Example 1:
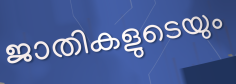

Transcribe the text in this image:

ജാതികളുടെയും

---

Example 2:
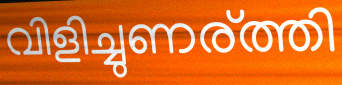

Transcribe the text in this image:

വിളിച്ചുണര്ത്തി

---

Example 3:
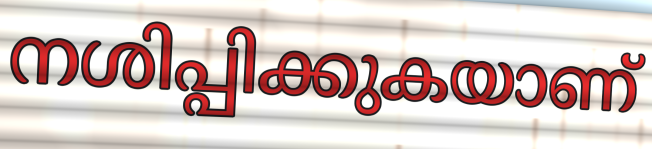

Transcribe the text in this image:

നശിപ്പിക്കുകയാണ്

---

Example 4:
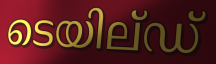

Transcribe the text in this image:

ടെയില്ഡ്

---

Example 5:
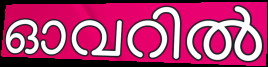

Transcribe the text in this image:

ഓവറിൽ